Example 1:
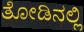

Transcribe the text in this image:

ತೋಡಿನಲ್ಲಿ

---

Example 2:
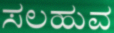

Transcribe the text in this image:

ಸಲಹುವ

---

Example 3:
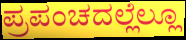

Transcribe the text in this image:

ಪ್ರಪಂಚದಲ್ಲೆಲ್ಲೂ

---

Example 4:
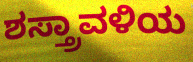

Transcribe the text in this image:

ಶಸ್ತ್ರಾವಳಿಯ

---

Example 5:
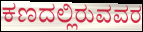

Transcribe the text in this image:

ಕಣದಲ್ಲಿರುವವರ